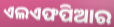
ଏଲଏଫପିଆର